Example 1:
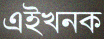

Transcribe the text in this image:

এইখনক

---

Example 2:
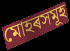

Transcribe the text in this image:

মোহৰসমূহ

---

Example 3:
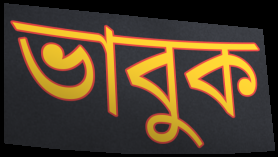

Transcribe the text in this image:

ভাবুক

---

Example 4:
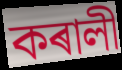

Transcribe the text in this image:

কৰালী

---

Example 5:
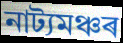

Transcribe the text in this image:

নাট্যমঞ্চৰ